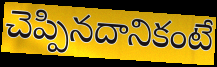
చెప్పినదానికంటే